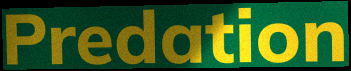
Predation